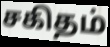
சகிதம்